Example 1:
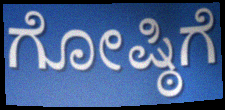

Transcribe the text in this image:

ಗೋಷ್ಠಿಗೆ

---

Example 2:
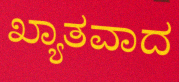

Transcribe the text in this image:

ಖ್ಯಾತವಾದ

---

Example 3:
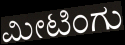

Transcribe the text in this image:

ಮೀಟಿಂಗು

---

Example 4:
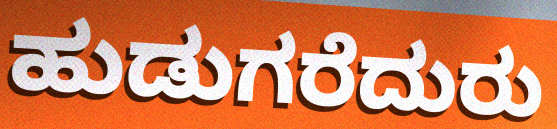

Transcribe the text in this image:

ಹುಡುಗರೆದುರು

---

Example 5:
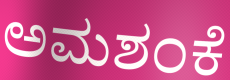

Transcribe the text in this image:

ಅಮಶಂಕೆ